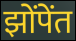
झोंपेंत